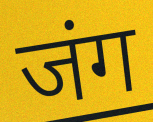
जंग